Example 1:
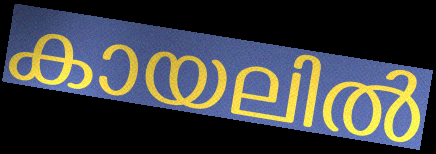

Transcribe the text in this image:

കായലിൽ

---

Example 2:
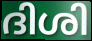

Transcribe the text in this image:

ദിശി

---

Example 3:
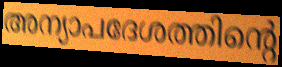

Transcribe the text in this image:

അന്യാപദേശത്തിന്റെ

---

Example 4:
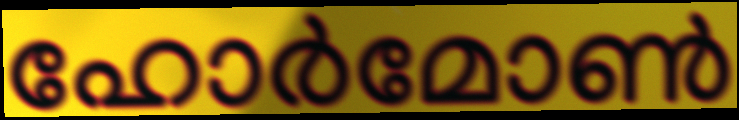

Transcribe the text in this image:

ഹോർമോൺ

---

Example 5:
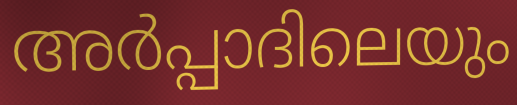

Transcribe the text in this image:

അർപ്പാദിലെയും